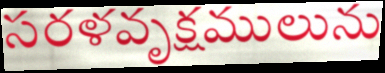
సరళవృక్షములును